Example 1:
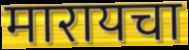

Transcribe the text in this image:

मारायचा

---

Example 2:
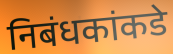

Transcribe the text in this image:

निबंधकांकडे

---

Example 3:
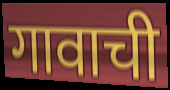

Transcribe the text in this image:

गावाची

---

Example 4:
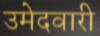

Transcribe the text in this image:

उमेदवारी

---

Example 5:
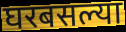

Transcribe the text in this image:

घरबसल्या